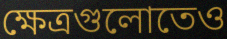
ক্ষেত্রগুলোতেও